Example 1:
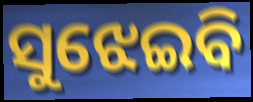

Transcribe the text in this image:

ସୁଝେଇବି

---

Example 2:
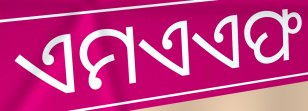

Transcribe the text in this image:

ଏମଏଏଫ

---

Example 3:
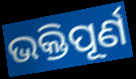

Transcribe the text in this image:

ଭକ୍ତିପୂର୍ଣ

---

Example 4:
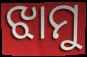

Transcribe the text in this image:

ଝାମୁ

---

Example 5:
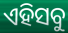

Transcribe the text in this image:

ଏହିସବୁ